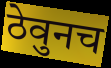
ठेवुनच